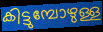
കിട്ടുമ്പോഴുള്ള